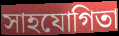
সাহযোগিতা